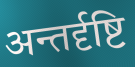
अन्तर्दृष्टि